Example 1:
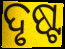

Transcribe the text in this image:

ଦୃଷ୍ଟ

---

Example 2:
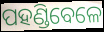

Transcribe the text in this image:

ପହଣ୍ଡିବେଳେ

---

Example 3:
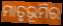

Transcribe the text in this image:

ମାତୃଭୂମିର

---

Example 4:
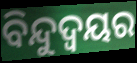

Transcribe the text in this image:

ବିନ୍ଦୁଦ୍ବୟର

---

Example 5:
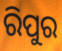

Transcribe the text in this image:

ରିପୁର